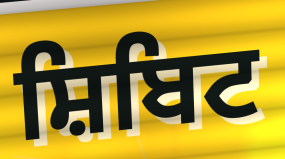
ਸ਼ਿਬਿਟ